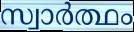
സ്വാർത്ഥം